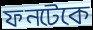
ফনটেকে